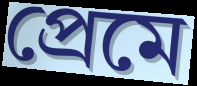
প্ৰেমে